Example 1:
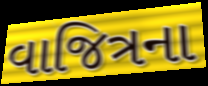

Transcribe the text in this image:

વાજિત્રના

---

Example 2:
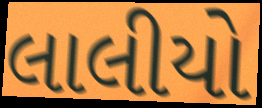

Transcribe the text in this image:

લાલીયો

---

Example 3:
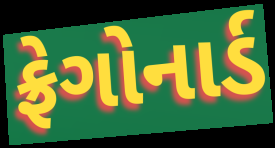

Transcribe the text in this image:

ફ્રેગોનાર્ડ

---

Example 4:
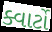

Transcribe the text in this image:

ક્વાર્ટો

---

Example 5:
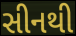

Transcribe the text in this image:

સીનથી